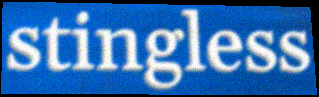
stingless